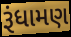
રૂંધામણ